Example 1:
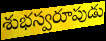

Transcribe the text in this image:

శుభస్వరూపుడు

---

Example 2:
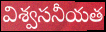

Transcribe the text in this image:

విశ్వసనీయత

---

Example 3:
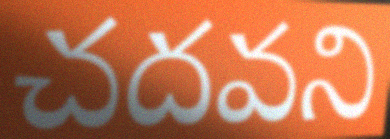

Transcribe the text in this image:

చదవని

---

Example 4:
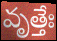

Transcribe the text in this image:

వృత్తేః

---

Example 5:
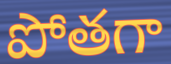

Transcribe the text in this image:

పోతగా